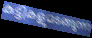
കുട്ടികളുമടങ്ങുന്ന